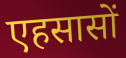
एहसासों